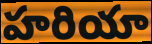
హరియా